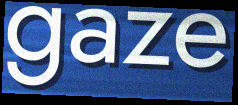
gaze